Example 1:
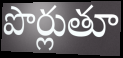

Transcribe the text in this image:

పొర్లుతూ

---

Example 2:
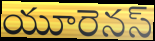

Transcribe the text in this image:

యూరెనస్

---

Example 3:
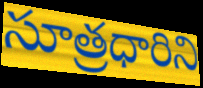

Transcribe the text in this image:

సూత్రధారిని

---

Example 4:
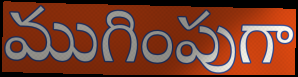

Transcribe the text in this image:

ముగింపుగా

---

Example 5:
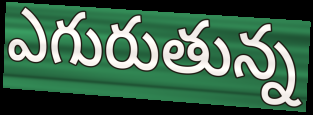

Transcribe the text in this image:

ఎగురుతున్న